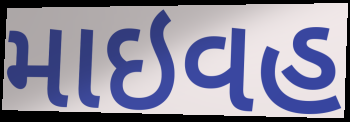
માઇવહ